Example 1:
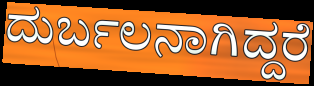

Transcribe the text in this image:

ದುರ್ಬಲನಾಗಿದ್ದರೆ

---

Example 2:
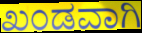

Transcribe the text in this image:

ಖಂಡವಾಗಿ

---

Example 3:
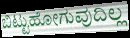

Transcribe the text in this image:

ಬಿಟ್ಟುಹೋಗುವುದಿಲ್ಲ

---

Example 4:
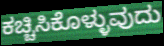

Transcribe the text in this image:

ಕಚ್ಚಿಸಿಕೊಳ್ಳುವುದು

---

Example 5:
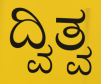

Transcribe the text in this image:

ದ್ವಿತ್ವ